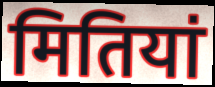
मितियां